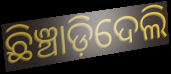
ଛିଞ୍ଚାଡ଼ିଦେଲି